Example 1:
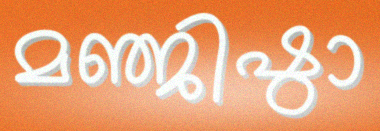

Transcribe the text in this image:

മഞ്ജിഷ്ഠാ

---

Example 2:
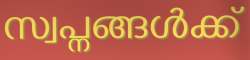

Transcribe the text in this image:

സ്വപ്നങ്ങൾക്ക്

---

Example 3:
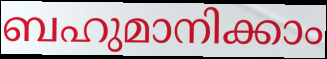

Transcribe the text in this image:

ബഹുമാനിക്കാം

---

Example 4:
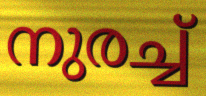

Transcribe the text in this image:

നുരച്ച്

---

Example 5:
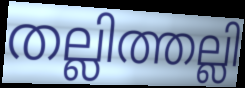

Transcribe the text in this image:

തല്ലിത്തല്ലി